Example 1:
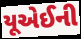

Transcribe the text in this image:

યૂએઈની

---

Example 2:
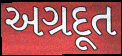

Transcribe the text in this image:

અગ્રદૂત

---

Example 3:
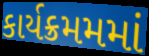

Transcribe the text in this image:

કાર્યક્રમમમાં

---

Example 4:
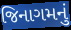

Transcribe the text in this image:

જિનાગમનું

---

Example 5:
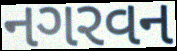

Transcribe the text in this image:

નગરવન